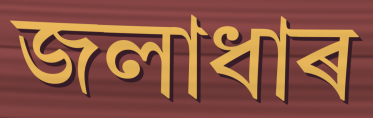
জলাধাৰ